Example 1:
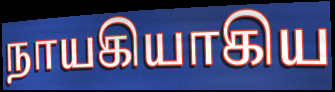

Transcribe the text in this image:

நாயகியாகிய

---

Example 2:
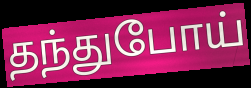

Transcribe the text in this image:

தந்துபோய்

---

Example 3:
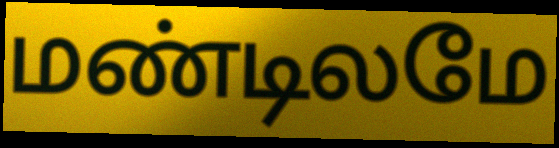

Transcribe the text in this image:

மண்டிலமே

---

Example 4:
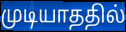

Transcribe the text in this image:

முடியாததில்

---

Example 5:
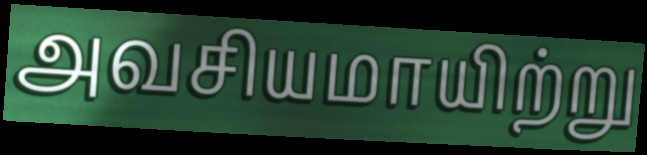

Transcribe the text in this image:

அவசியமாயிற்று